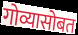
गोव्यासोबत